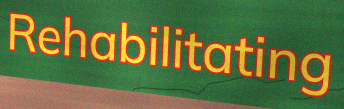
Rehabilitating